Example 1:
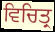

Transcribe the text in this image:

ਵਿਚਿਤ੍ਰ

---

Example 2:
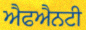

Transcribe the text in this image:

ਐਫਐਨਟੀ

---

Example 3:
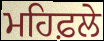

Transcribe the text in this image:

ਮਹਿਫ਼ਲੇ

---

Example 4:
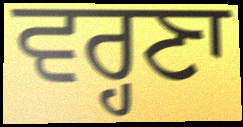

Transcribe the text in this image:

ਵਰ੍ਹਣਾ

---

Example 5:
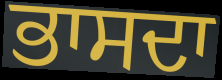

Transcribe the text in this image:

ਭਾਸਦਾ